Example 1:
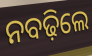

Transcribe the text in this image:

ନବଢ଼ିଲେ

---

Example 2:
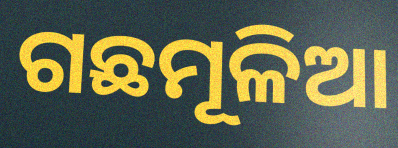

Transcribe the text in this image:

ଗଛମୂଳିଆ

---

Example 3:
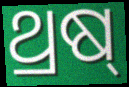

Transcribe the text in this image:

ଥ୍ରଷ୍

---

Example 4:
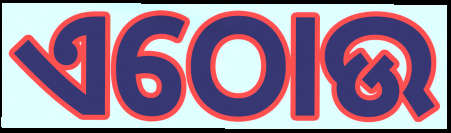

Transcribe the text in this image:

ଏଠୋଉ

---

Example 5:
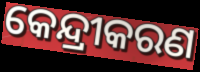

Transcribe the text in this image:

କେନ୍ଦ୍ରୀକରଣ